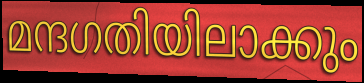
മന്ദഗതിയിലാക്കും